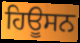
ਹਿਊਸਨ